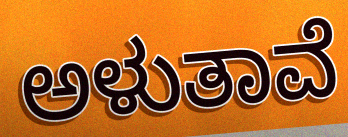
ಅಳುತಾವೆ